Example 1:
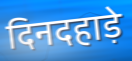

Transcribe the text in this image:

दिनदहाड़े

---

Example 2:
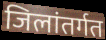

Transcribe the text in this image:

जिलांतर्गत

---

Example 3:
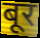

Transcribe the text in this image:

बूर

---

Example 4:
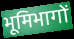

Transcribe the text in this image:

भूमिभागों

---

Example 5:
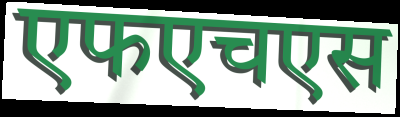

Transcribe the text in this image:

एफएचएस